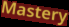
Mastery